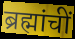
ब्रह्मांचीं